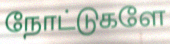
நோட்டுகளே